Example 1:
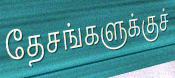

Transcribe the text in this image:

தேசங்களுக்குச்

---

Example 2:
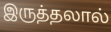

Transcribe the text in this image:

இருத்தலால்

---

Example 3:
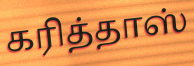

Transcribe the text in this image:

கரித்தாஸ்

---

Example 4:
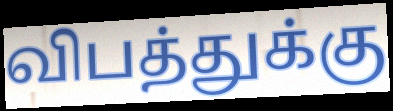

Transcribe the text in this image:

விபத்துக்கு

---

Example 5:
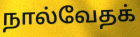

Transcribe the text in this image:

நால்வேதக்